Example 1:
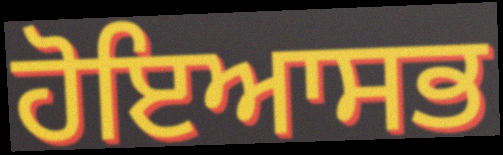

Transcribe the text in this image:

ਹੋਇਆਸਭ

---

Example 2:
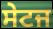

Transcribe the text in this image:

ਸੇਟਜ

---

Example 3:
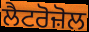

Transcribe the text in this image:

ਲੈਟਰੋਜ਼ੋਲ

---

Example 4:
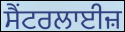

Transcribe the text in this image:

ਸੈਂਟਰਲਾਈਜ਼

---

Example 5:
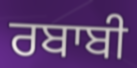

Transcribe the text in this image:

ਰਬਾਬੀ